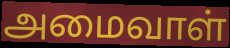
அமைவாள்